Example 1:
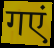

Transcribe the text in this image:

गएं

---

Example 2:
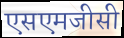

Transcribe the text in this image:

एसएमजीसी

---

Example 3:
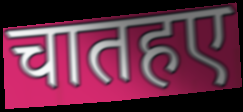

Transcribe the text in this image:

चातहए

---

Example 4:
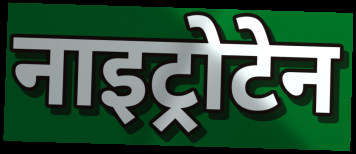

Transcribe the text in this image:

नाइट्रोटेन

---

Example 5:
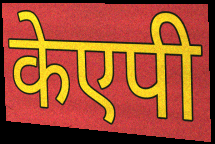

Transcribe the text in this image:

केएपी